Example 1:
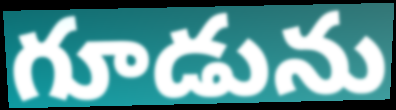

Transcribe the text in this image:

గూడును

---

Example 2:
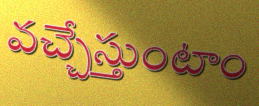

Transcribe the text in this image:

వచ్చేస్తుంటాం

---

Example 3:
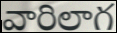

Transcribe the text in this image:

వారిలాగ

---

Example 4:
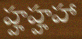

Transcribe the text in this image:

హ్హహ్హహా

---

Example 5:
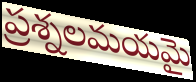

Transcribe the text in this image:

ప్రశ్నలమయమై